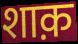
शाक़